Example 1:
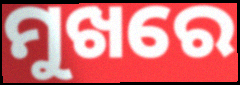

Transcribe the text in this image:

ମୁଖରେ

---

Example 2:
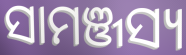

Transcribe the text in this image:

ସାମଞ୍ଜସ୍ୟ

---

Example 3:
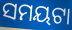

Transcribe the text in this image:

ସମୟଟା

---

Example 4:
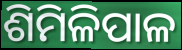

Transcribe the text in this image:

ଶିମିଳିପାଳ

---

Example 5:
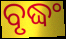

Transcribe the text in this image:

ବୃଦ୍ଧଂ